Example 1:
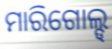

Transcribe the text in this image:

ମାରିଗୋଲ୍ଡ୍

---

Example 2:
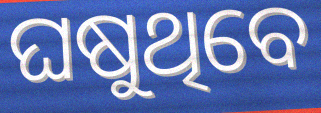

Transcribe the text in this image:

ଘଷୁଥିବେ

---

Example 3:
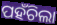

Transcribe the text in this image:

ପହଁଚିଲା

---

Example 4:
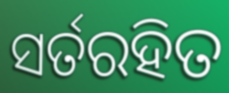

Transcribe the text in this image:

ସର୍ତରହିତ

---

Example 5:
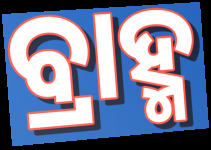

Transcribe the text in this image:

ବ୍ରାହ୍ମ